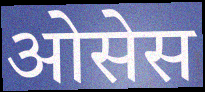
ओसेस